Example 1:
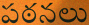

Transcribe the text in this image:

పఠనలు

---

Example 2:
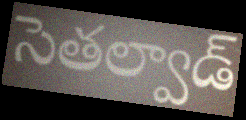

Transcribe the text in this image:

సెతల్వాడ్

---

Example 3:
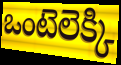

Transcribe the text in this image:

ఒంటెలెక్కి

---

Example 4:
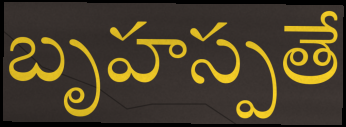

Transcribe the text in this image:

బృహస్పతే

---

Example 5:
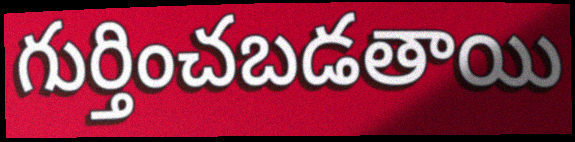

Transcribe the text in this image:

గుర్తించబడతాయి